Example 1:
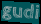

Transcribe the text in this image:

gudi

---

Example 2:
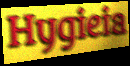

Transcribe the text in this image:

Hygieia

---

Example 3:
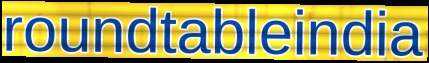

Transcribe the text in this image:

roundtableindia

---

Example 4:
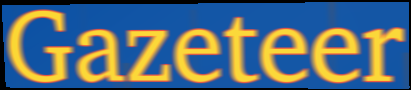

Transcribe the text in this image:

Gazeteer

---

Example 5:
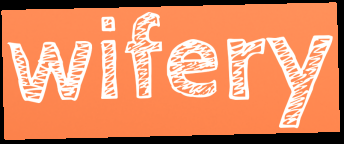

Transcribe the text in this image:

wifery